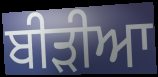
ਬੀੜੀਆ